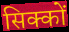
सिक्कों